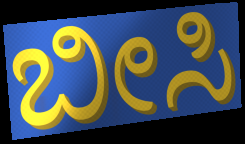
ಬೀಸಿ